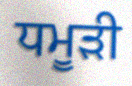
ਧਮੂੜੀ